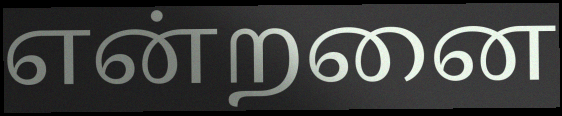
என்றனை